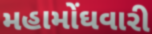
મહામોંઘવારી